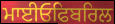
ਮਾਈਓਫਿਬਰਿਲ